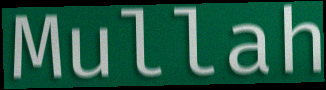
Mullah